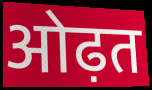
ओढ़त